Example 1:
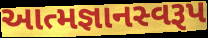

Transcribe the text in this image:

આત્મજ્ઞાનસ્વરૂપ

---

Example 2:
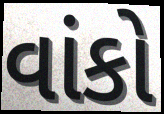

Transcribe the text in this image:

વાંકો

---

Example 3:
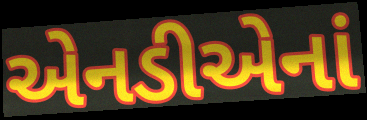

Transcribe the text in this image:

એનડીએનાં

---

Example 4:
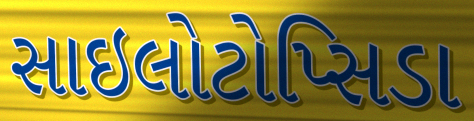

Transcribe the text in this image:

સાઇલોટોપ્સિડા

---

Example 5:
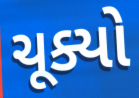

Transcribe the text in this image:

ચૂક્યો